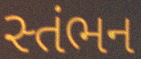
સ્તંભન